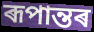
ৰূপান্তৰ